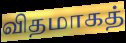
விதமாகத்